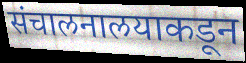
संचालनालयाकडून